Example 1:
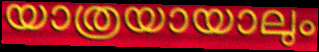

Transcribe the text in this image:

യാത്രയായാലും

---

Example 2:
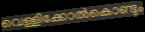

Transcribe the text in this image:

വെള്ളിക്കോൽകൊണ്ടും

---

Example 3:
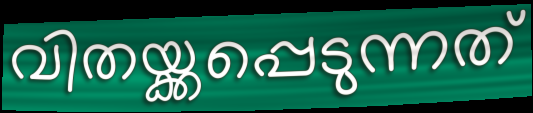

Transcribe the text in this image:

വിതയ്ക്കപ്പെടുന്നത്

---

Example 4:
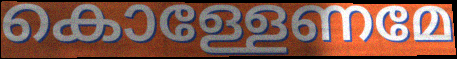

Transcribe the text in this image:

കൊള്ളേണമേ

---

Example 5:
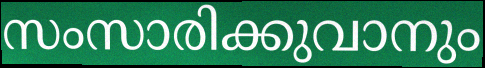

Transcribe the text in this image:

സംസാരിക്കുവാനും